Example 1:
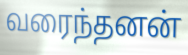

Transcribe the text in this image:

வரைந்தனன்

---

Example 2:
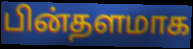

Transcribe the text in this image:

பின்தளமாக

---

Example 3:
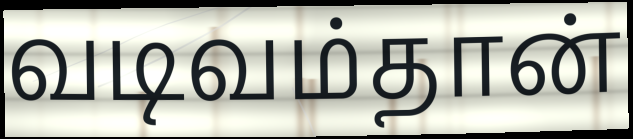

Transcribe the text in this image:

வடிவம்தான்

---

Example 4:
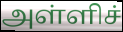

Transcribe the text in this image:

அள்ளிச்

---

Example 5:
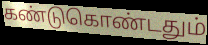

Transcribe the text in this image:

கண்டுகொண்டதும்